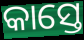
କାସ୍ତେ